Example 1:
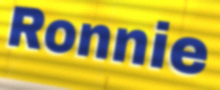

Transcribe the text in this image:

Ronnie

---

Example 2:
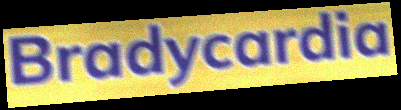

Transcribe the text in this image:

Bradycardia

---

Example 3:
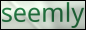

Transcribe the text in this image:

seemly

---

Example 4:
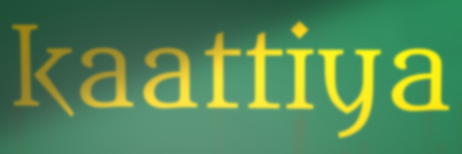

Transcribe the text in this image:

kaattiya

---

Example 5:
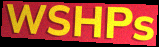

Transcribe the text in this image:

WSHPs